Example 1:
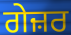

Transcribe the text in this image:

ਗੇਜ਼ਰ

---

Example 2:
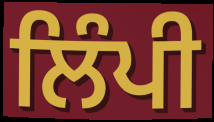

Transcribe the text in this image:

ਲਿੰਪੀ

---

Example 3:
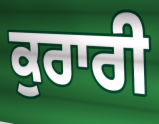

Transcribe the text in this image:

ਕੁਰਾਰੀ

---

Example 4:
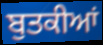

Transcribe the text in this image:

ਬੁਤਕੀਆਂ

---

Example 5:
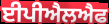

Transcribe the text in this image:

ਈਪੀਐਲਐਫ